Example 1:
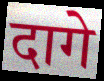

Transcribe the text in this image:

दागे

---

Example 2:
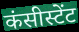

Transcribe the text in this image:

कंसीस्टेंट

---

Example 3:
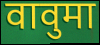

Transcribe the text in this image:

वावुमा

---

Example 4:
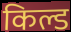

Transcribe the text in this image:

किल्ड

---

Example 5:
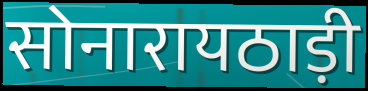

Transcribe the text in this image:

सोनारायठाड़ी